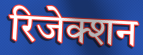
रिजेक्शन